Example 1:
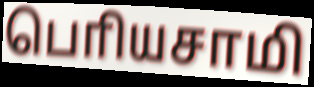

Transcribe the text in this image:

பெரியசாமி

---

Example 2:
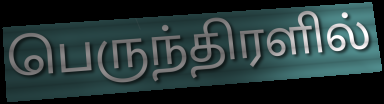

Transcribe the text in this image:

பெருந்திரளில்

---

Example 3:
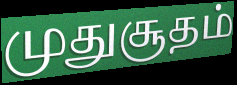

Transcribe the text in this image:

முதுசூதம்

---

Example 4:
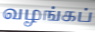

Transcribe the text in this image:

வழங்கப்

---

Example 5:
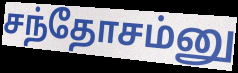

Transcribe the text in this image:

சந்தோசம்னு